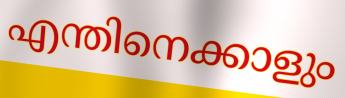
എന്തിനെക്കാളും